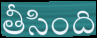
తీసింది